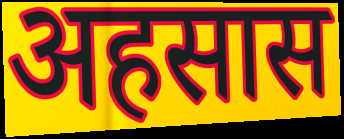
अहसास